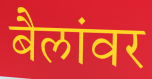
बैलांवर